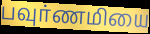
பவுர்ணமியை